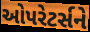
ઓપરેટર્સને